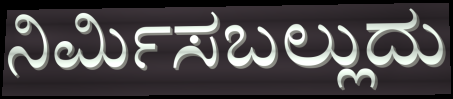
ನಿರ್ಮಿಸಬಲ್ಲುದು